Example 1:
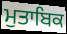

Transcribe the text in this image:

ਮੁਤਾਬਿਕ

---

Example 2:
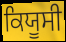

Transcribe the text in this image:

ਕਿਯੂਸੀ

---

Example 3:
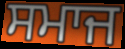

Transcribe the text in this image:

ਸਮਾਜ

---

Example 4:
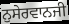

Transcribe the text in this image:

ਨੁਸੇਰਵਾਨਜੀ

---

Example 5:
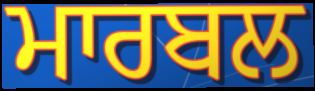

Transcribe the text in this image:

ਮਾਰਬਲ